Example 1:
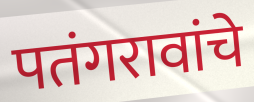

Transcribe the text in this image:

पतंगरावांचे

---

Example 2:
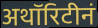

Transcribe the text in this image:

अथॉरिटीनं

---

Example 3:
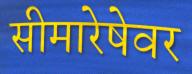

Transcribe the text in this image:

सीमारेषेवर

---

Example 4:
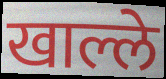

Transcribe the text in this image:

खाल्ले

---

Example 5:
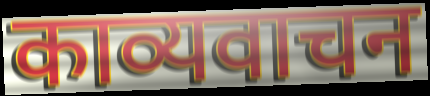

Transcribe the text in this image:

काव्यवाचन